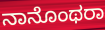
ನಾನೊಂಥರಾ